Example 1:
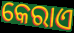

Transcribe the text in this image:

କେରାଏ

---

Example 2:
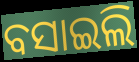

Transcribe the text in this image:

ବସାଇଲି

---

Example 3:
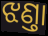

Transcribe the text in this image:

ଝଣ୍ତା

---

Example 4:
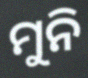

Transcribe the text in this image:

ମୁନି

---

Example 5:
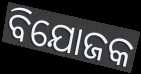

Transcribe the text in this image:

ବିଯୋଜକ